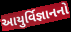
આયુર્વિજ્ઞાનનો